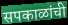
सपकाळांची